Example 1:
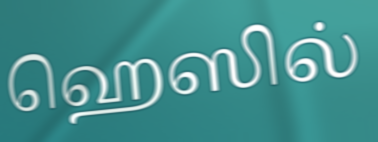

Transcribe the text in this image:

ஹெஸில்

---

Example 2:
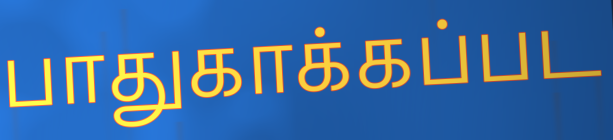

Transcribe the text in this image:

பாதுகாக்கப்பட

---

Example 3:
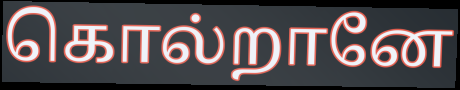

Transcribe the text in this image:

கொல்றானே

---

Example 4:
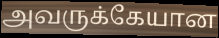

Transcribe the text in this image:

அவருக்கேயான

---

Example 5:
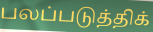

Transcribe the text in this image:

பலப்படுத்திக்